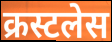
क्रस्टलेस